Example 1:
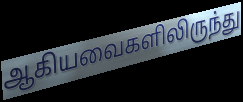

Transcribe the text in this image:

ஆகியவைகளிலிருந்து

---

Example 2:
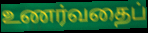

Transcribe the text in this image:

உணர்வதைப்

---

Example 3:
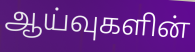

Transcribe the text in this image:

ஆய்வுகளின்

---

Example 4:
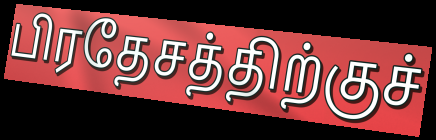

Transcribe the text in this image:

பிரதேசத்திற்குச்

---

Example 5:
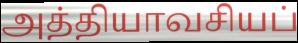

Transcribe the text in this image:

அத்தியாவசியப்